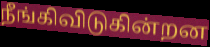
நீங்கிவிடுகின்றன